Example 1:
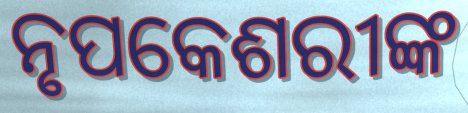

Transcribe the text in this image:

ନୃପକେଶରୀଙ୍କ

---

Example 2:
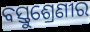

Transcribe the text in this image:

ବସ୍ତୁଶ୍ରେଣୀର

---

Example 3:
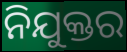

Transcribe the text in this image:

ନିଯୁକ୍ତର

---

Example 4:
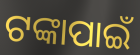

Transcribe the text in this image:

ଟଙ୍କାପାଇଁ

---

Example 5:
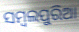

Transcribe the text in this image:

ସମ୍ବଲପୁରିଆ